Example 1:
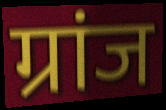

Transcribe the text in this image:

ग्रांज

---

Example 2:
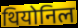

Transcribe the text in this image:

थियोनिल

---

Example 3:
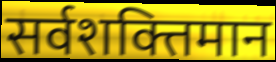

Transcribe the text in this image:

सर्वशक्तिमान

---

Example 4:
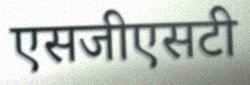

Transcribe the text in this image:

एसजीएसटी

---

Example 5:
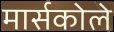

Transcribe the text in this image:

मार्सकोले